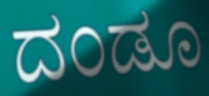
ದಂಡೂ